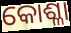
କୋଶ୍ଳା